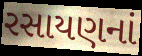
રસાયણનાં